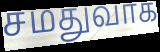
சமதுவாக